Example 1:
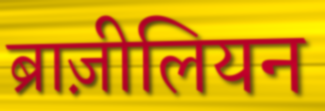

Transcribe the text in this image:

ब्राज़ीलियन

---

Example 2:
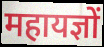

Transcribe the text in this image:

महायज्ञों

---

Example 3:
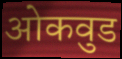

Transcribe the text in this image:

ओकवुड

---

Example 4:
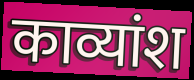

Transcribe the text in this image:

काव्यांश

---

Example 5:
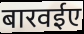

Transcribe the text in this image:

बारवईए